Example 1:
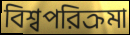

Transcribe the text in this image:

বিশ্বপরিক্রমা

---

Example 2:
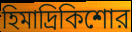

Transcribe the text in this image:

হিমাদ্রিকিশোর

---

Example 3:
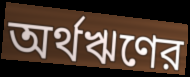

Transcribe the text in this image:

অর্থঋণের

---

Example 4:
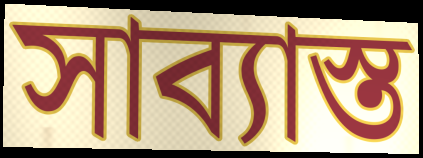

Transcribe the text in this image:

সাব্যাস্ত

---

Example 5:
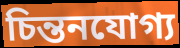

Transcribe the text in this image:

চিন্তনযোগ্য